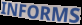
INFORMS